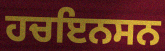
ਹਚਇਨਸਨ